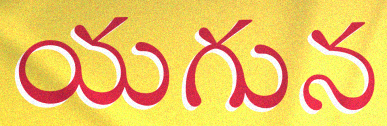
యగున